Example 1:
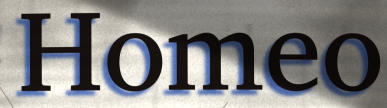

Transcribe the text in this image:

Homeo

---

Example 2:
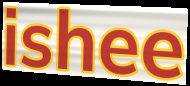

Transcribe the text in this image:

ishee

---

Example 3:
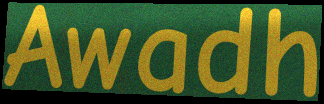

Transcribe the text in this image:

Awadh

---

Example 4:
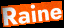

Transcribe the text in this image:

Raine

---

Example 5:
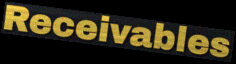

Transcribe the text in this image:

Receivables